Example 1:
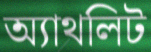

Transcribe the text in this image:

অ্যাথলিট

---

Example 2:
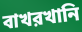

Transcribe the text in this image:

বাখরখানি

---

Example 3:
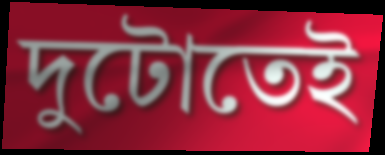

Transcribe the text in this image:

দুটোতেই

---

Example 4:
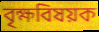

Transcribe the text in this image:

বৃক্ষবিষয়ক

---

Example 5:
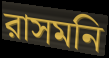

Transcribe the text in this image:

রাসমনি